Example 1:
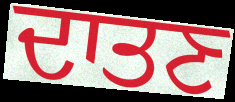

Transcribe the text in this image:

ਦਾਤਣ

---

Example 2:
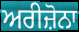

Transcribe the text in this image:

ਅਰੀਜ਼ੋਨਾ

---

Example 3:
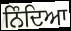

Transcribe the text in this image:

ਨਿੰਦਿਆ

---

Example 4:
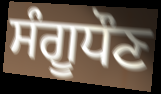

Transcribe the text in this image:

ਸੰਗੂਧੌਣ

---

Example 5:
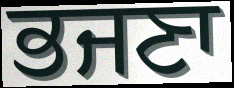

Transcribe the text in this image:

ਭਜਣਾ